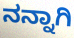
ನನ್ನಾಗಿ